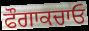
ਫੌਗਾਕਚਾਓ